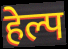
हेल्‍प